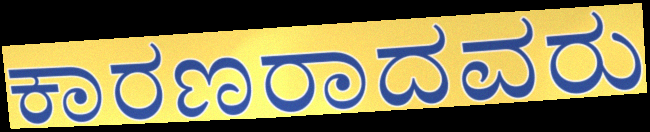
ಕಾರಣರಾದವರು